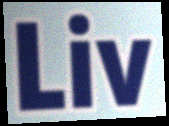
Liv